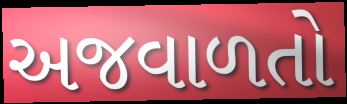
અજવાળતો